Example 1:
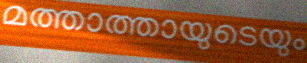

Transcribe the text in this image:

മത്താത്തായുടെയും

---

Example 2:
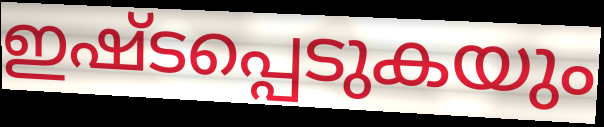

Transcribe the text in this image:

ഇഷ്ടപ്പെടുകയും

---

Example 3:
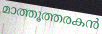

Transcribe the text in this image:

മാത്തൂത്തരകൻ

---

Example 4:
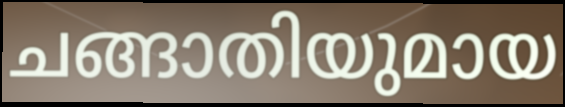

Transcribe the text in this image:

ചങ്ങാതിയുമായ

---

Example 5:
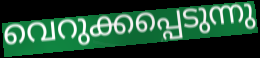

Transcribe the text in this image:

വെറുക്കപ്പെടുന്നു